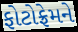
ફોટોફ્રેમને